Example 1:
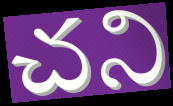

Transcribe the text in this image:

చని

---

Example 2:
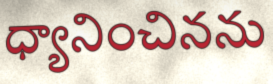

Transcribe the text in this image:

ధ్యానించినను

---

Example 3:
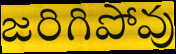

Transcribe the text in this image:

జరిగిపోవు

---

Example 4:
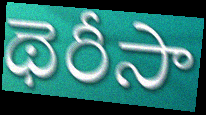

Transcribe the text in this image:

థెరీసా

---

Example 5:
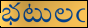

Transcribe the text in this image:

భటులఁ